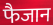
फैजान